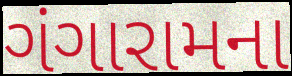
ગંગારામના